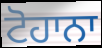
ਟੋਹਾਨਾ